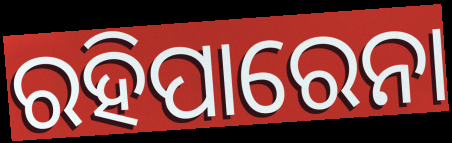
ରହିପାରେନା